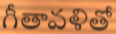
గీతావళితో